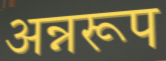
अन्नरूप